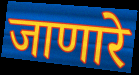
जाणारे